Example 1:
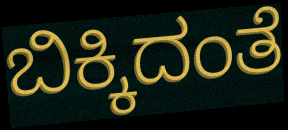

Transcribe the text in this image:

ಬಿಕ್ಕಿದಂತೆ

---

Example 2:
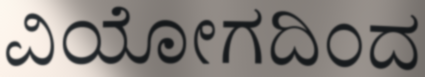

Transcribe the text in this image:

ವಿಯೋಗದಿಂದ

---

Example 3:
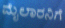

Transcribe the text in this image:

ಮೈಲಾರನಿಗೆ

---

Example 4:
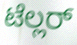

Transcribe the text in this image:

ಟೆಲ್ಲರ್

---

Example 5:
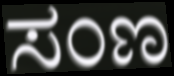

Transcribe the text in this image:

ಸಂಣ